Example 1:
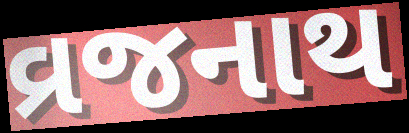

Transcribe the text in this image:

વ્રજનાથ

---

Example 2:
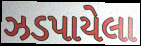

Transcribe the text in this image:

ઝડપાયેલા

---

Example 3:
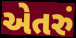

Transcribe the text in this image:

એતરું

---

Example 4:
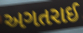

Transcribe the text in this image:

અગતરાઈ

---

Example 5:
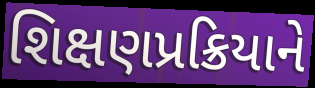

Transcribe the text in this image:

શિક્ષણપ્રક્રિયાને